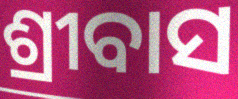
ଶ୍ରୀବାସ